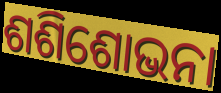
ଶଶିଶୋଭନା